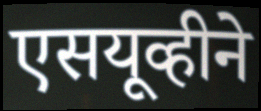
एसयूव्हीने